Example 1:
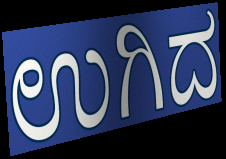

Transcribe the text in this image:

ಉಗಿದ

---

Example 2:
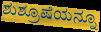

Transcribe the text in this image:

ಶುಶ್ರೂಷೆಯನ್ನೂ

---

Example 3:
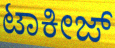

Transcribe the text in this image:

ಟಾಕೀಜ್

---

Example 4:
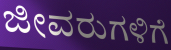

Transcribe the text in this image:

ಜೀವರುಗಳಿಗೆ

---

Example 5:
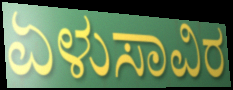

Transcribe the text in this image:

ಏಳುಸಾವಿರ